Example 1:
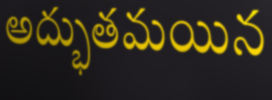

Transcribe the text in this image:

అద్భుతమయిన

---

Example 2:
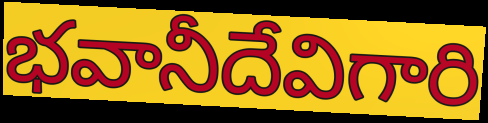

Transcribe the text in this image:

భవానీదేవిగారి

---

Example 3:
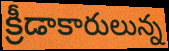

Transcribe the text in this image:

క్రీడాకారులున్న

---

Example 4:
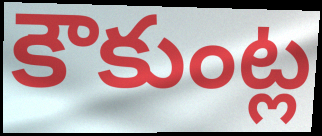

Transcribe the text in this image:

కౌకుంట్ల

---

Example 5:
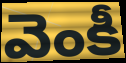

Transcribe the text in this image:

వెంకీ